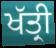
ਖੱਤ੍ਰੀ